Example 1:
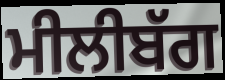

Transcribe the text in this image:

ਮੀਲੀਬੱਗ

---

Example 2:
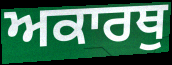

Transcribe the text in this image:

ਅਕਾਰਥੁ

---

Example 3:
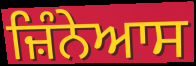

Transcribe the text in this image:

ਜ਼ਿੰਨੇਆਸ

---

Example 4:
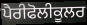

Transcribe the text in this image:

ਪੈਰੀਫੋਲੀਕੂਲਰ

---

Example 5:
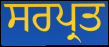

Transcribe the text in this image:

ਸਰਪ੍ਰਤ